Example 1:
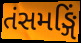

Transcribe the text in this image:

તંસમઙ્ગિં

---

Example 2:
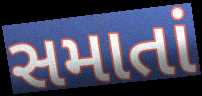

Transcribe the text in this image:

સમાતાં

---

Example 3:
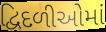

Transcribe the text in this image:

દ્વિદળીઓમાં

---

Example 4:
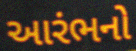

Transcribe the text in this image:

આરંભનો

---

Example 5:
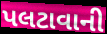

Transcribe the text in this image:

પલટાવાની